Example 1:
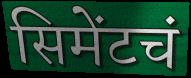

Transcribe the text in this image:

सिमेंटचं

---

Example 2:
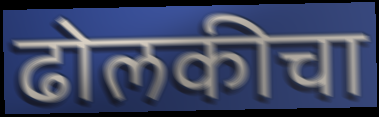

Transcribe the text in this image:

ढोलकीचा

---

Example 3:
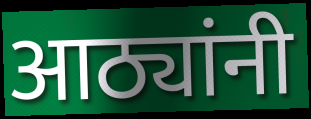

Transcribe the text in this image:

आठ्यांनी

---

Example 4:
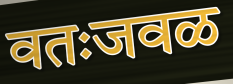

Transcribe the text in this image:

वतःजवळ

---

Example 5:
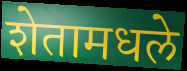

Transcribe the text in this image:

शेतामधले